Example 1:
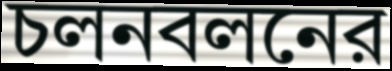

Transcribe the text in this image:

চলনবলনের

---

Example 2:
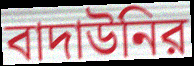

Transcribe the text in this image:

বাদাউনির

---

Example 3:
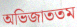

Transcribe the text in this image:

অভিজাততম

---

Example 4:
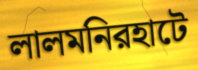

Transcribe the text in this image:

লালমনিরহাটে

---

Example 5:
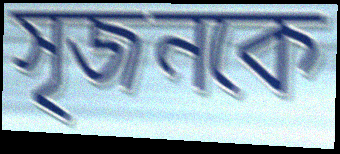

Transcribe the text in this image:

সৃজনকে